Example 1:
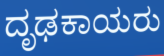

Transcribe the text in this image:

ದೃಢಕಾಯರು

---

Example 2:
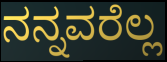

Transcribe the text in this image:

ನನ್ನವರೆಲ್ಲ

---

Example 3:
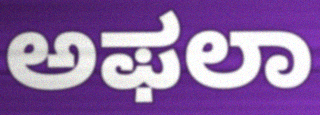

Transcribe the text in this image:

ಅಫಲಾ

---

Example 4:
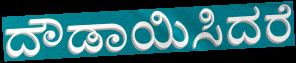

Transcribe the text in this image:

ದೌಡಾಯಿಸಿದರೆ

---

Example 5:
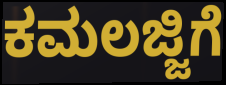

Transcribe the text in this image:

ಕಮಲಜ್ಜಿಗೆ